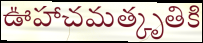
ఊహాచమత్కృతికి